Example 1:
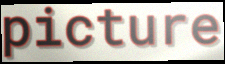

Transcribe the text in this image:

picture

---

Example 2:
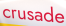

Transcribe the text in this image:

crusade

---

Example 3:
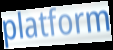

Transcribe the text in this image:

platform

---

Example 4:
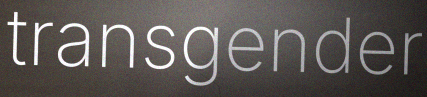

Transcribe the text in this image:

transgender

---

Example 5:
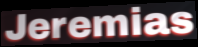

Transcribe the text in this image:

Jeremias